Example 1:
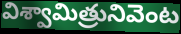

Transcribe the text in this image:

విశ్వామిత్రునివెంట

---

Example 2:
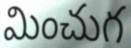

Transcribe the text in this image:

మించుగ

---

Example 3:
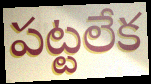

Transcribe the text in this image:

పట్టలేక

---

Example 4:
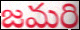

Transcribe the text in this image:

జమరి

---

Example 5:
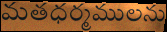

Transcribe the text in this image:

మతధర్మములను